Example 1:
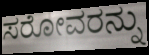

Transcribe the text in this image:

ಸರೋವರನ್ನು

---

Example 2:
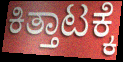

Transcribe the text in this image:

ಕಿತ್ತಾಟಕ್ಕೆ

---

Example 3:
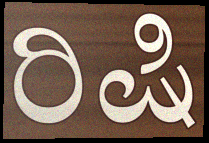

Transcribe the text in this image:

ರಿಷಿ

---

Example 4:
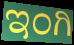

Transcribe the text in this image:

ಇಂಗಿ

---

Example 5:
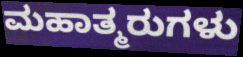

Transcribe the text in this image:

ಮಹಾತ್ಮರುಗಳು